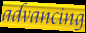
advancing